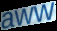
aww